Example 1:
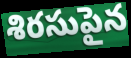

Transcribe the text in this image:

శిరసుపైన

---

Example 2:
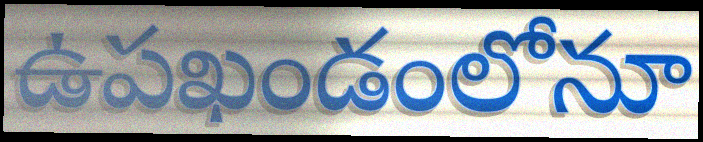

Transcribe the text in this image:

ఉపఖండంలోనూ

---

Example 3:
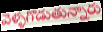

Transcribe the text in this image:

వెళ్ళగొడుతున్నారు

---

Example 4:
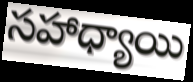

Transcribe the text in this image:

సహాధ్యాయి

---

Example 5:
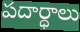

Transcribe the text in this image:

పదార్ధాలు